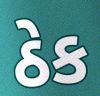
ઠેક